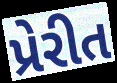
પ્રેરીત